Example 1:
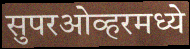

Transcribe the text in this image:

सुपरओव्हरमध्ये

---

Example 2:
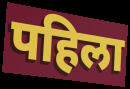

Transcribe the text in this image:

पहिला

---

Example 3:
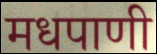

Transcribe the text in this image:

मधपाणी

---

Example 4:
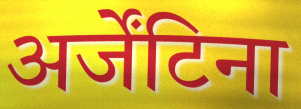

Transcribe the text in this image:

अर्जेंटिना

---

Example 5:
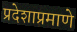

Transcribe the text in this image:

प्रदेशाप्रमाणे